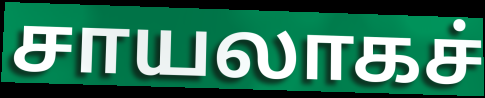
சாயலாகச்